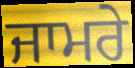
ਜਾਮਰੇ